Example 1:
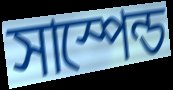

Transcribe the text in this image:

সাস্পেন্ড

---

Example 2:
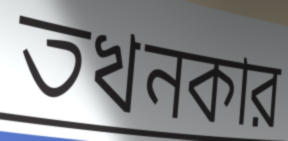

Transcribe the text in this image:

তখনকার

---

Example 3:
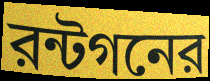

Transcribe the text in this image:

রন্টগনের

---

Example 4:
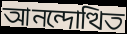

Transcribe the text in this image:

আনন্দোত্থিত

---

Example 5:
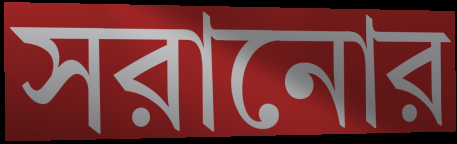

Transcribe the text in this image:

সরানোর